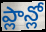
ప్లాన్లో